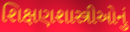
શિક્ષણશાસ્ત્રીઓનું